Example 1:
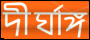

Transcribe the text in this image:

দীর্ঘাঙ্গ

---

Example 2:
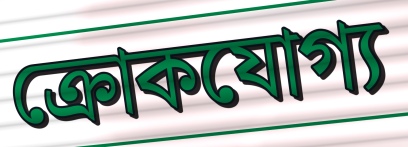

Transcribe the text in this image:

ক্রোকযোগ্য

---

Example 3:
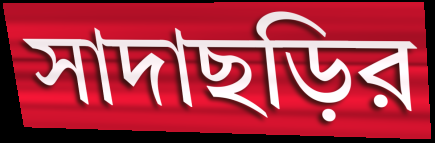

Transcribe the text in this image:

সাদাছড়ির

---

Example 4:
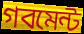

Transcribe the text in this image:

গবমেন্ট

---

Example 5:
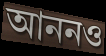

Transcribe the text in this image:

আননও